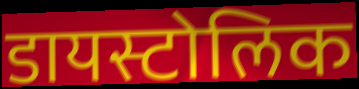
डायस्टोलिक